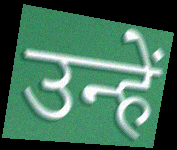
उन्हें